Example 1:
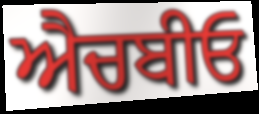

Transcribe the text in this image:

ਐਚਬੀਓ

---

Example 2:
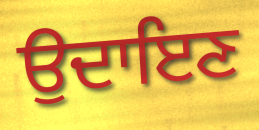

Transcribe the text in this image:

ਉਦਾਇਣ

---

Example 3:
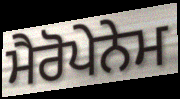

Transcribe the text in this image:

ਮੈਰੋਪੇਨੇਮ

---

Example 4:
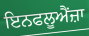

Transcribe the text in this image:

ਇਨਫਲੂਐਂਜ਼ਾ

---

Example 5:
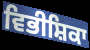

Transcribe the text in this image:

ਵਿਭੀਸ਼ਿਕਾ